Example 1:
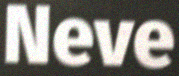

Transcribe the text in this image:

Neve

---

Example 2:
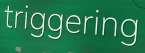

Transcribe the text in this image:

triggering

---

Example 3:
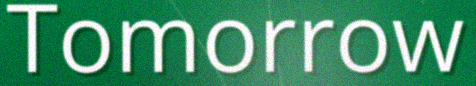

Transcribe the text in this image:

Tomorrow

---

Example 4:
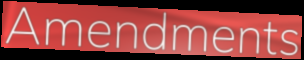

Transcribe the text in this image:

Amendments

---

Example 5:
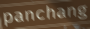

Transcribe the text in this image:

panchang